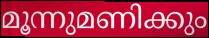
മൂന്നുമണിക്കും